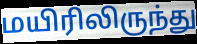
மயிரிலிருந்து